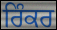
ਰਿੰਕਰ